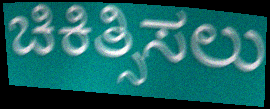
ಚಿಕಿತ್ಸಿಸಲು